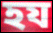
হয